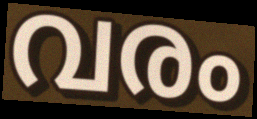
വരം